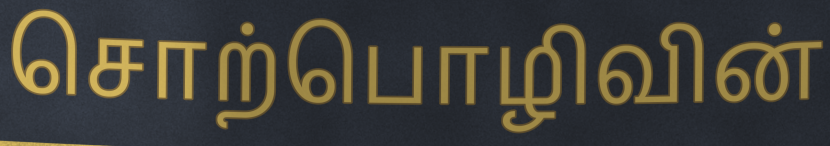
சொற்பொழிவின்